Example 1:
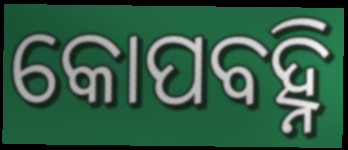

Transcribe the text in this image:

କୋପବହ୍ନି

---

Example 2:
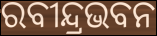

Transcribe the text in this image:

ରବୀନ୍ଦ୍ରଭବନ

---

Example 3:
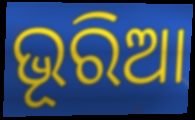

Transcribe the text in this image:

ଭୂରିଆ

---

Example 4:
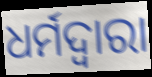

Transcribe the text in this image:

ଧର୍ମଦ୍ୱାରା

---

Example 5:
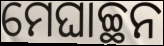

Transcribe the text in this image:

ମେଘାଚ୍ଛନ